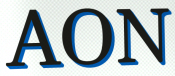
AON